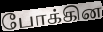
போக்கின